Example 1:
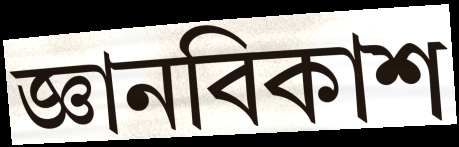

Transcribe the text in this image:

জ্ঞানবিকাশ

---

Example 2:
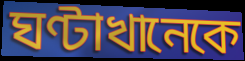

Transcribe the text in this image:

ঘণ্টাখানেকে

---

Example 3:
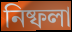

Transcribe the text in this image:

নিষ্ফলা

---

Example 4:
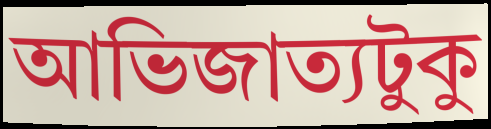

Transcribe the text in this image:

আভিজাত্যটুকু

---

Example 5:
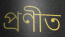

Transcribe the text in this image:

প্রণীত